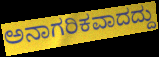
ಅನಾಗರಿಕವಾದದ್ದು